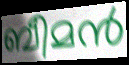
ബീമൻ